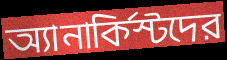
অ্যানার্কিস্টদের